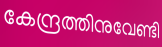
കേന്ദ്രത്തിനുവേണ്ടി